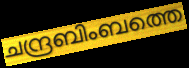
ചന്ദ്രബിംബത്തെ